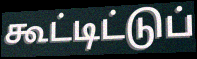
கூட்டிட்டுப்